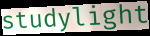
studylight